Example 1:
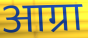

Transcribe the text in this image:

आग्रा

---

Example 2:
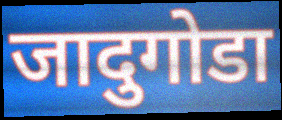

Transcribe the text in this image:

जादुगोडा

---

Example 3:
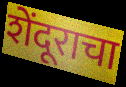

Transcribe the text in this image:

शेंदूराचा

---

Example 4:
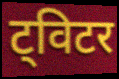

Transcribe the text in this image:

ट्विटर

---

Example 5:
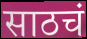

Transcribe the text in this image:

साठचं